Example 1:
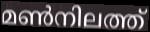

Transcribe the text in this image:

മൺനിലത്ത്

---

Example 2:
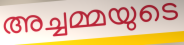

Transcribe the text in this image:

അച്ചമ്മയുടെ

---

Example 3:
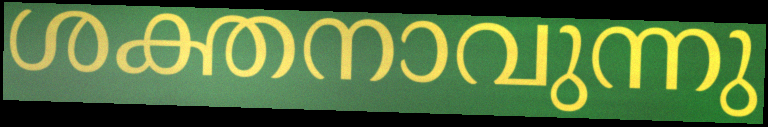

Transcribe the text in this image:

ശക്തനാവുന്നു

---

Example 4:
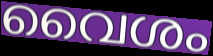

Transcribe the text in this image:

വൈശം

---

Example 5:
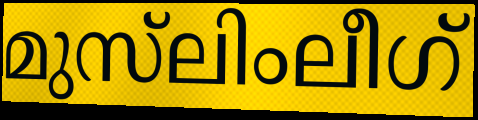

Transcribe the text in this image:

മുസ്‌ലിംലീഗ്